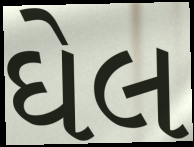
ઘેલ